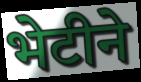
भेटीने